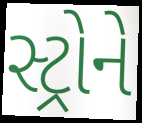
સ્ટ્રોને